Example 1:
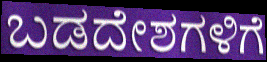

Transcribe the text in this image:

ಬಡದೇಶಗಳಿಗೆ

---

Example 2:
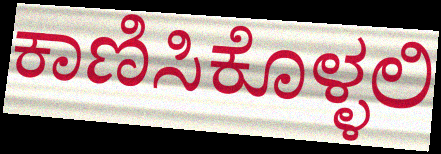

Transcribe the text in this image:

ಕಾಣಿಸಿಕೊಳ್ಳಲಿ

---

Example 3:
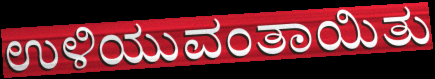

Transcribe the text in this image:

ಉಳಿಯುವಂತಾಯಿತು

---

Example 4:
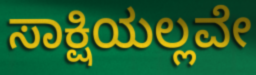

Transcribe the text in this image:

ಸಾಕ್ಷಿಯಲ್ಲವೇ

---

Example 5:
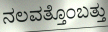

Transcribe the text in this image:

ನಲವತ್ತೊಂಬತ್ತು